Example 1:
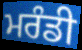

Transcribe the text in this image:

ਮਰੰਡੀ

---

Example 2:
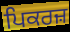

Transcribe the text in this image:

ਪਿਕਰਜ਼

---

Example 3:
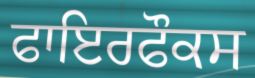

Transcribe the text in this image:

ਫਾਇਰਫੌਕਸ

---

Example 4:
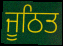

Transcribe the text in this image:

ਜੂਠਿਤ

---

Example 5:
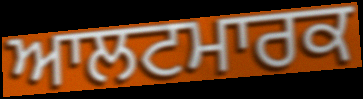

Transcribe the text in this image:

ਆਲਟਮਾਰਕ